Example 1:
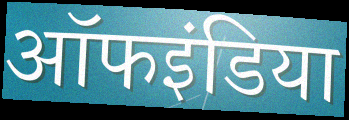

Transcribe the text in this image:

ऑफइंडिया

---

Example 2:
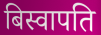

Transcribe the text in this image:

बिस्वापति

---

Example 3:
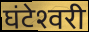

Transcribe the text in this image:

घंटेश्वरी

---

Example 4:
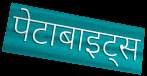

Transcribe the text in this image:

पेटाबाइट्स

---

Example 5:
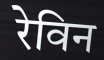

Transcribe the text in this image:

रेविन